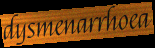
dysmenarrhoea